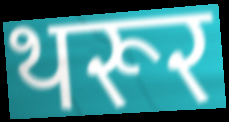
थरूर